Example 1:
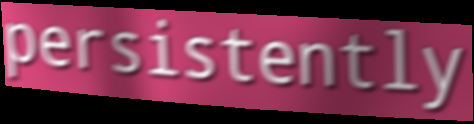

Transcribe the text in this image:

persistently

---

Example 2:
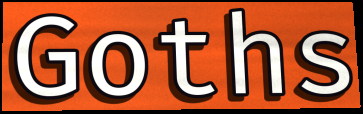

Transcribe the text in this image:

Goths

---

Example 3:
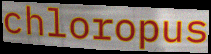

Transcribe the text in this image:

chloropus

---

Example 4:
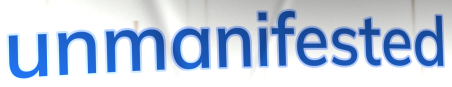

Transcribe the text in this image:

unmanifested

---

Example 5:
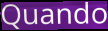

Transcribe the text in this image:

Quando